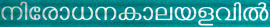
നിരോധനകാലയളവിൽ